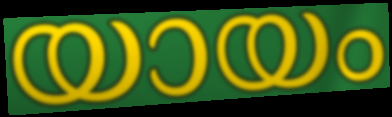
യായം